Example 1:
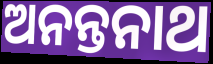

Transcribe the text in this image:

ଅନନ୍ତନାଥ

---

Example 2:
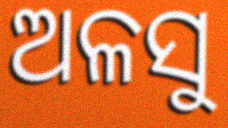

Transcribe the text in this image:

ଅଳସୁ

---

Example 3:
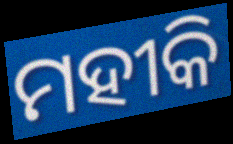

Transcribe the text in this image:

ମହୀକି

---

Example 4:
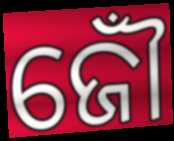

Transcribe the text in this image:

ଜୌଁ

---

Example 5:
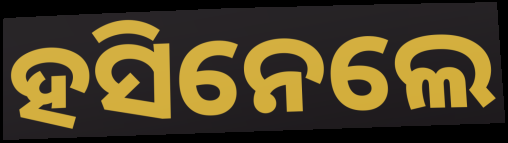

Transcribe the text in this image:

ହସିନେଲେ